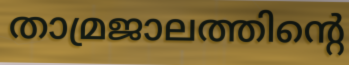
താമ്രജാലത്തിന്റെ